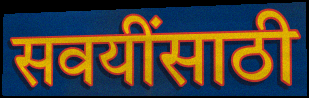
सवयींसाठी